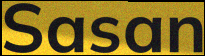
Sasan